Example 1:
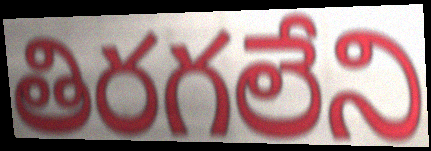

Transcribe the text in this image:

తిరగలేని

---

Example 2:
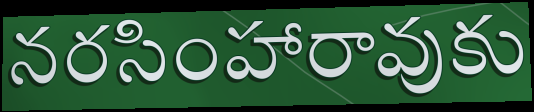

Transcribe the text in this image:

నరసింహారావుకు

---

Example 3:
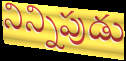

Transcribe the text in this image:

నిన్నిపుడు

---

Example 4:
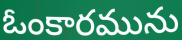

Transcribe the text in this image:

ఓంకారమును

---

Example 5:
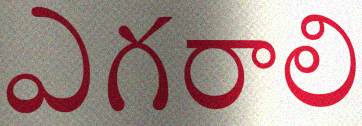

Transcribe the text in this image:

ఎగరాలి